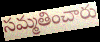
సమ్మతించారు